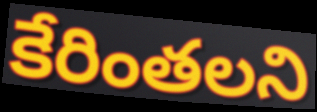
కేరింతలని